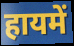
हायमें